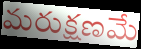
మరుక్షణమే